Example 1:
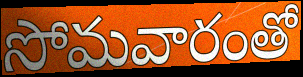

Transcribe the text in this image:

సోమవారంతో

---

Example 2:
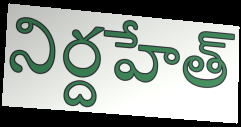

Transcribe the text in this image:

నిర్దహేత్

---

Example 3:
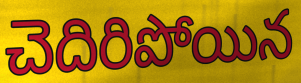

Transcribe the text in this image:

చెదిరిపోయిన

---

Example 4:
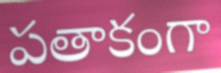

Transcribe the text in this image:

పతాకంగా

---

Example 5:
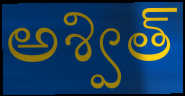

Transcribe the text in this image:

అశ్విత్